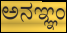
ಅನಞ್ಞಂ